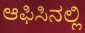
ಆಫಿಸಿನಲ್ಲಿ